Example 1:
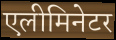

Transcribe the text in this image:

एलीमिनेटर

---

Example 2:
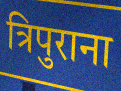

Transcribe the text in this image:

त्रिपुराना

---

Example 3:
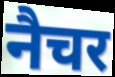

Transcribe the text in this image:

नैचर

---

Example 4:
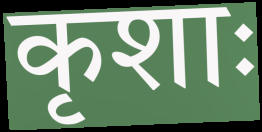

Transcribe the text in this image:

कृशाः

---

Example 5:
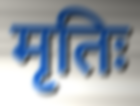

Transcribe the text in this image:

मृतिः